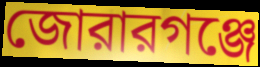
জোরারগঞ্জে